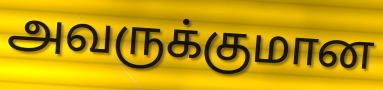
அவருக்குமான